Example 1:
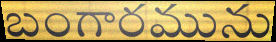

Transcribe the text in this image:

బంగారమును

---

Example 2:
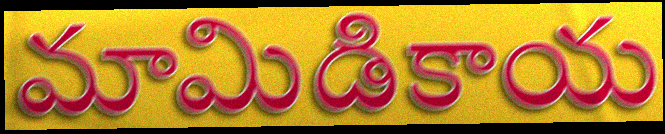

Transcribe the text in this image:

మామిడికాయ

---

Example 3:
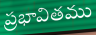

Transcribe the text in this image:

ప్రభావితము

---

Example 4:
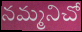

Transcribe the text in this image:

నమ్మనిచో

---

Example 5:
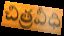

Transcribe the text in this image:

చిత్రవీధి